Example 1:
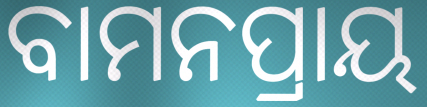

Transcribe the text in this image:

ବାମନପ୍ରାୟ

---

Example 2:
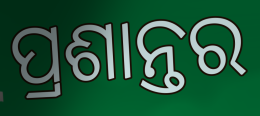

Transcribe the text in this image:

ପ୍ରଶାନ୍ତର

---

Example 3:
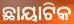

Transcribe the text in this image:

ଛାୟାଟିକ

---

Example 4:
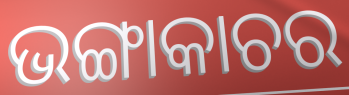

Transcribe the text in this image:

ଭଙ୍ଗାକାଚର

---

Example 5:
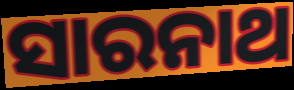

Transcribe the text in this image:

ସାରନାଥ